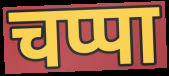
चप्पा